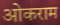
ओकराम